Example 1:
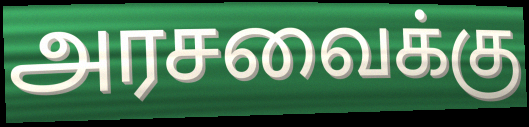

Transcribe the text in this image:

அரசவைக்கு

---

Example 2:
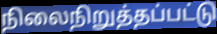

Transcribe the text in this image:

நிலைநிறுத்தப்பட்டு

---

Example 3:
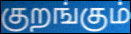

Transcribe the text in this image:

குறங்கும்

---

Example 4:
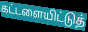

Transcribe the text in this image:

கட்டளையிட்டுத்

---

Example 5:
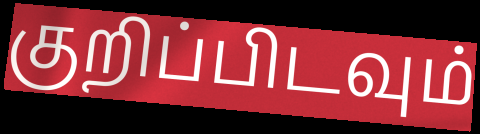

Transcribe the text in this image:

குறிப்பிடவும்